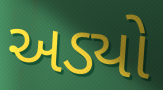
અડ્યો